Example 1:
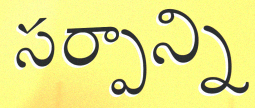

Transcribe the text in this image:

సర్పాన్ని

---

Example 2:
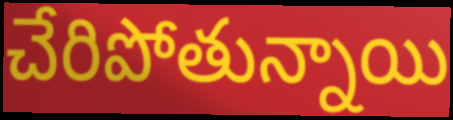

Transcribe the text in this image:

చేరిపోతున్నాయి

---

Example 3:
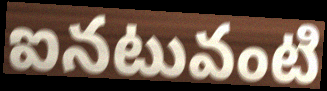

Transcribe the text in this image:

ఐనటువంటి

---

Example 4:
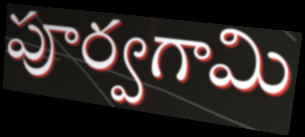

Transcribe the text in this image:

పూర్వగామి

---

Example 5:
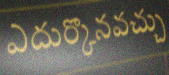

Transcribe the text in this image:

ఎదుర్కొనవచ్చు